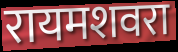
रायमशवरा